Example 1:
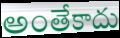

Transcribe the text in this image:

అంతేకాదు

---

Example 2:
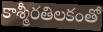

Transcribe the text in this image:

కాశ్మీరతిలకంతో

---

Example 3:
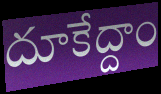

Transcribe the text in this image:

దూకేద్దాం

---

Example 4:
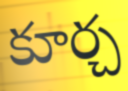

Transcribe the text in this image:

కూర్చ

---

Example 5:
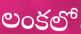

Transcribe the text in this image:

లంకలో